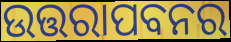
ଉତ୍ତରାପବନର